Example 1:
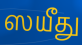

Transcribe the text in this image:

ஸயீது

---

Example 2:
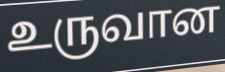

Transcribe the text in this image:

உருவான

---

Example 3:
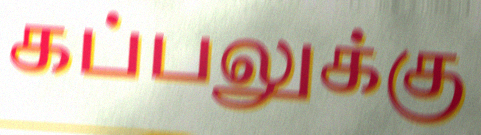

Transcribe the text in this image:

கப்பலுக்கு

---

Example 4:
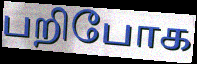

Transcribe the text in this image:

பறிபோக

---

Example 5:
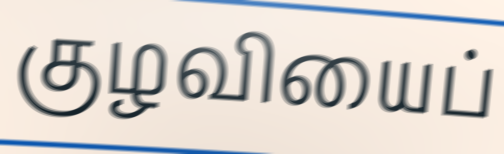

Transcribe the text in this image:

குழவியைப்